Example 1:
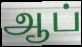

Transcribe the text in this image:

ஆப்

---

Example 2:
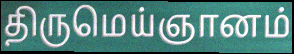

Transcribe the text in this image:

திருமெய்ஞானம்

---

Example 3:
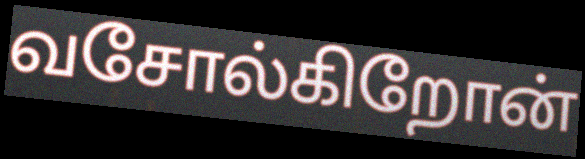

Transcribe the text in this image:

வசோல்கிறோன்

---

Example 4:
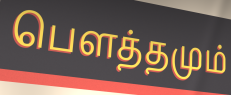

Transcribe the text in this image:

பௌத்தமும்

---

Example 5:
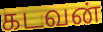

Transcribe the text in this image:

கடவன்